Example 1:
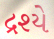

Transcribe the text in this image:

દ્રશ્યે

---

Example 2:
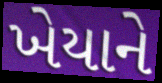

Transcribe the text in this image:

ખેયાને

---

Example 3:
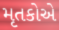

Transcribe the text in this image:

મૃતકોએ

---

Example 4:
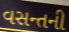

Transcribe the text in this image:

વસન્તની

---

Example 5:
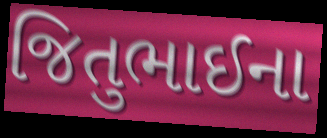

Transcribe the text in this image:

જિતુભાઈના